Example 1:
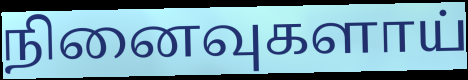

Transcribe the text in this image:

நினைவுகளாய்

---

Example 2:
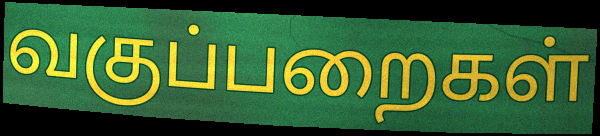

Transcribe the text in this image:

வகுப்பறைகள்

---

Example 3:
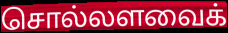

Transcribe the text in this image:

சொல்லளவைக்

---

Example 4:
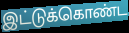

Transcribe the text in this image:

இட்டுக்கொண்ட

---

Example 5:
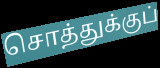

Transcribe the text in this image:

சொத்துக்குப்